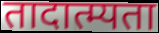
तादात्म्यता